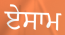
ਏਸਾਮ